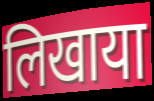
लिखाया